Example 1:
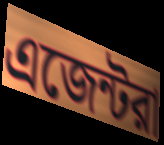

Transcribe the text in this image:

এজেন্টরা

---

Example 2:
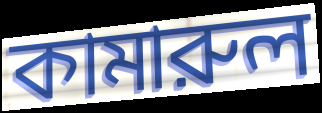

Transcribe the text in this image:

কামারুল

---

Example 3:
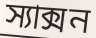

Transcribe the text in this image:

স্যাক্সন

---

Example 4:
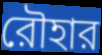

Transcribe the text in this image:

রৌহার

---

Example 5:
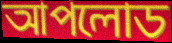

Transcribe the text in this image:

আপলোড